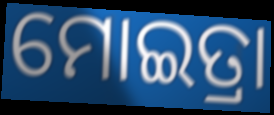
ମୋଇତ୍ରା